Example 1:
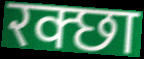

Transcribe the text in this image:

रक्छा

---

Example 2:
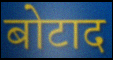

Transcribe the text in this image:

बोटाद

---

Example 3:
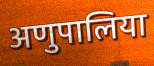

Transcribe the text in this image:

अणुपालिया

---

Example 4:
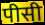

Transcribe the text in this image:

पीसी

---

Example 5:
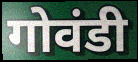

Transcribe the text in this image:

गोवंडी